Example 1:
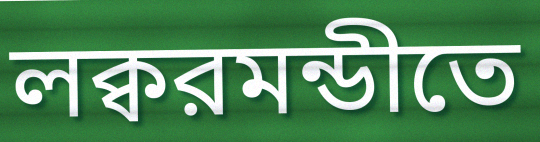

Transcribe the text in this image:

লক্বরমন্ডীতে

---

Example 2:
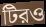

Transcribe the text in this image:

টিরও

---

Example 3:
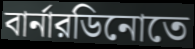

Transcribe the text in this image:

বার্নারডিনোতে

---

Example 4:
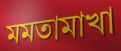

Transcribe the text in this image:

মমতামাখা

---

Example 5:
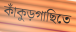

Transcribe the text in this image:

কাঁকুড়গাছিতে